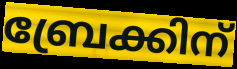
ബ്രേക്കിന്